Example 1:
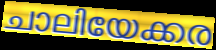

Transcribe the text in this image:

ചാലിയേക്കര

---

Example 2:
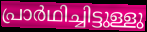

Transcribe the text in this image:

പ്രാർഥിച്ചിട്ടുള്ളു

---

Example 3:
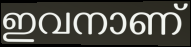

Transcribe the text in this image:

ഇവനാണ്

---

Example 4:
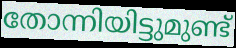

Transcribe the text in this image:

തോന്നിയിട്ടുമുണ്ട്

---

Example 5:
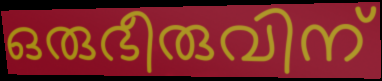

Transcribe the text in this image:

ഒരുഭീരുവിന്